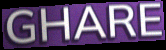
GHARE